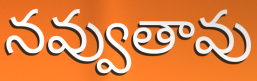
నవ్వుతావు